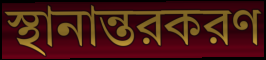
স্থানান্তরকরণ